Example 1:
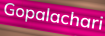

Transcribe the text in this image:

Gopalachari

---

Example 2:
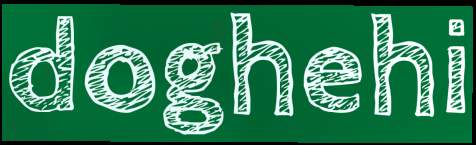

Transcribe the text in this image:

doghehi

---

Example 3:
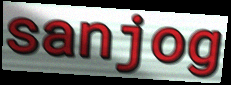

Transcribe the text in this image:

sanjog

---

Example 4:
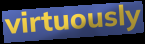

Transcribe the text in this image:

virtuously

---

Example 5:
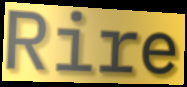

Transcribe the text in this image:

Rire